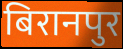
बिरानपुर